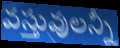
వస్తువులన్నీ